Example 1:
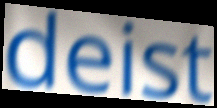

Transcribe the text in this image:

deist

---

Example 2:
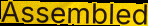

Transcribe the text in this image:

Assembled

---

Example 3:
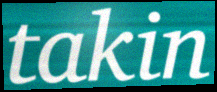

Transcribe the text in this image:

takin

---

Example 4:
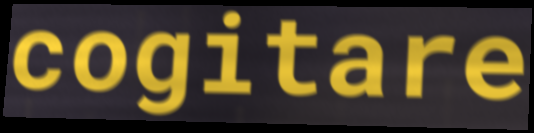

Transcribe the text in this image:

cogitare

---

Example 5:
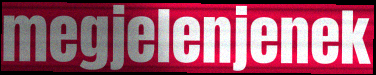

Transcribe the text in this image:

megjelenjenek